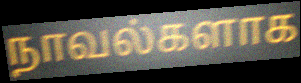
நாவல்களாக